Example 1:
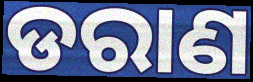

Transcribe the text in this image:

ଡରାଣ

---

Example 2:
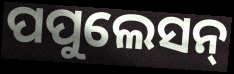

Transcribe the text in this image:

ପପୁଲେସନ୍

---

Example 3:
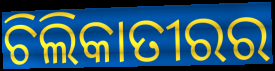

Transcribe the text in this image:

ଚିଲିକାତୀରର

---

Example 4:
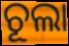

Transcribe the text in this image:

ଚୂଲା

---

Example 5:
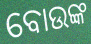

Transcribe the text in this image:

ବୋଉଙ୍କ